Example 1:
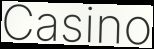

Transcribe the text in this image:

Casino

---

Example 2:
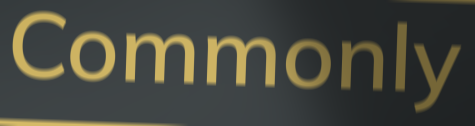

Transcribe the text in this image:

Commonly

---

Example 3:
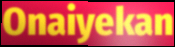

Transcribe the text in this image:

Onaiyekan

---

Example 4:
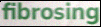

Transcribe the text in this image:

fibrosing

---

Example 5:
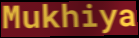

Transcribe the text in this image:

Mukhiya